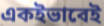
একইভাবেই